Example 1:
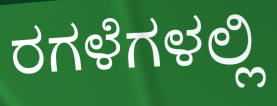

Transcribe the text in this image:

ರಗಳೆಗಳಲ್ಲಿ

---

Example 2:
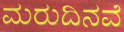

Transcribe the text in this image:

ಮರುದಿನವೆ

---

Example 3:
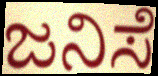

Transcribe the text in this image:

ಜನಿಸೆ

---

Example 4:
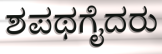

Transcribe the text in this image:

ಶಪಥಗೈದರು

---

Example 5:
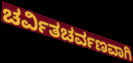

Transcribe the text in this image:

ಚರ್ವಿತಚರ್ವಣವಾಗಿ